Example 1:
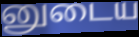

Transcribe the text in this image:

னுடைய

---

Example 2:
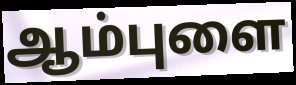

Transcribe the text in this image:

ஆம்புளை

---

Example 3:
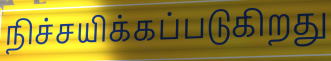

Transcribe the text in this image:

நிச்சயிக்கப்படுகிறது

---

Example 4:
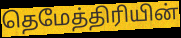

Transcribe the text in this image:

தெமேத்திரியின்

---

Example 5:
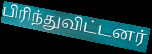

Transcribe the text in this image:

பிரிந்துவிட்டனர்